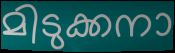
മിടുക്കനാ